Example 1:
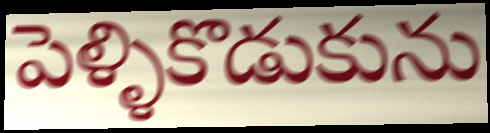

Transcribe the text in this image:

పెళ్ళికొడుకును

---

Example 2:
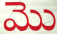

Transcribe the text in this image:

మొ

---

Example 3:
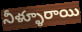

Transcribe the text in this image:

నీళ్ళూరాయి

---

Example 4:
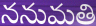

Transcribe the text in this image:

ననుమతి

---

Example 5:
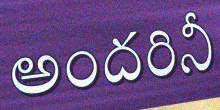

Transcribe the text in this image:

అందరినీ